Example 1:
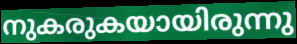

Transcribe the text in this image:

നുകരുകയായിരുന്നു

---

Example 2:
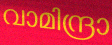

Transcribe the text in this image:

വാമിന്ദ്രാ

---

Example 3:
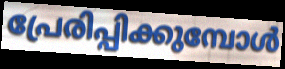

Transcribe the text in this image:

പ്രേരിപ്പിക്കുമ്പോൾ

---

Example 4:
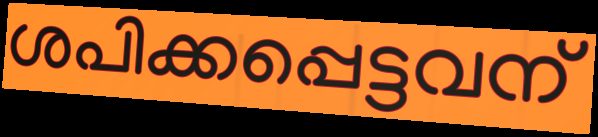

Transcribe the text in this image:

ശപിക്കപ്പെട്ടവന്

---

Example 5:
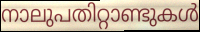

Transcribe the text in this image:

നാലുപതിറ്റാണ്ടുകൾ